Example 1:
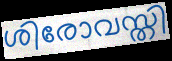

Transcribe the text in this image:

ശിരോവസ്തി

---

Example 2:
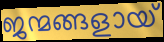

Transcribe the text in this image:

ജന്മങ്ങളായ്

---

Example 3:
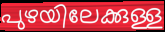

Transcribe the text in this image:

പുഴയിലേക്കുള്ള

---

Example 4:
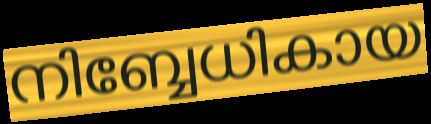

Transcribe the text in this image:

നിബ്ബേധികായ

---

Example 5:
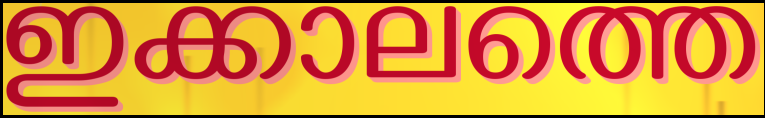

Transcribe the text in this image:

ഇക്കാലത്തെ